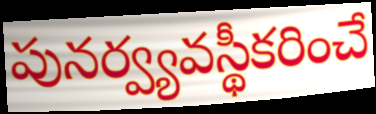
పునర్వ్యవస్థీకరించే